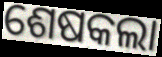
ଶେଷକଲା